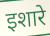
इशारे